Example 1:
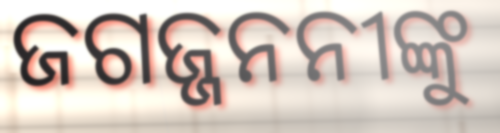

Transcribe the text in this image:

ଜଗଜ୍ଜନନୀଙ୍କୁ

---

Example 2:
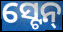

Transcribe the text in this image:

ସ୍ଟେନ୍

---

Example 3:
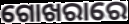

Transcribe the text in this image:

ଗୋଖରାରେ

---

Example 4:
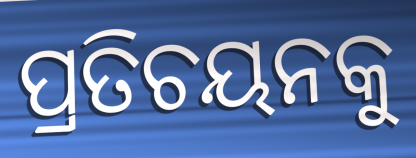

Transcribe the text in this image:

ପ୍ରତିଚୟନକୁ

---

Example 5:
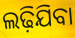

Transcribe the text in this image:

ଲଢ଼ିଯିବା